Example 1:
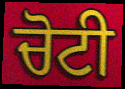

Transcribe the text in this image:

ਚੋਟੀ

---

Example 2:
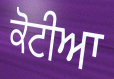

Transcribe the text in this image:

ਕੋਟੀਆ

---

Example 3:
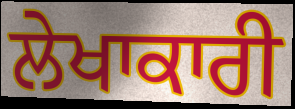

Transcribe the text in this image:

ਲੇਖਾਕਾਰੀ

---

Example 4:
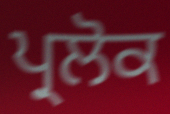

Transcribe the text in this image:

ਪ੍ਰਲੋਕ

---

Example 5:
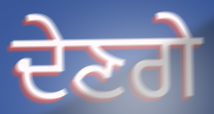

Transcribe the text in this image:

ਦੇਣਗੇ